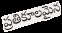
ప్రతికూలమైన